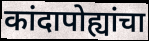
कांदापोह्यांचा